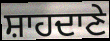
ਸ਼ਾਹਦਾਣੇ